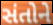
સંતોને